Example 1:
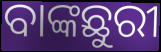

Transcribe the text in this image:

ବାଙ୍କଛୁରୀ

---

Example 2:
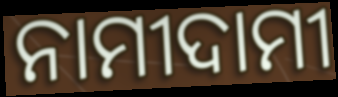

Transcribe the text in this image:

ନାମୀଦାମୀ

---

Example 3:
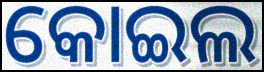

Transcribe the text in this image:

କୋଇଲ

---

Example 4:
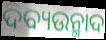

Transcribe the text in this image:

ଦିବ୍ୟଉନ୍ମାଦ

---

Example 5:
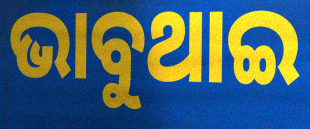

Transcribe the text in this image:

ଭାବୁଥାଇ